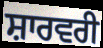
ਸ਼ਾਰਵਰੀ